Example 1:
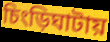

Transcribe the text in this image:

চিংড়িঘাটায়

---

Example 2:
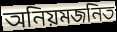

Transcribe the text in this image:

অনিয়মজনিত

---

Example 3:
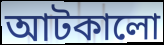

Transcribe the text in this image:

আটকালো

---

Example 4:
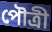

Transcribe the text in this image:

পৌত্রী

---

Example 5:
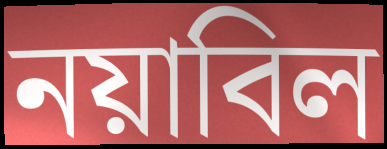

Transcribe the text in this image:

নয়াবিল